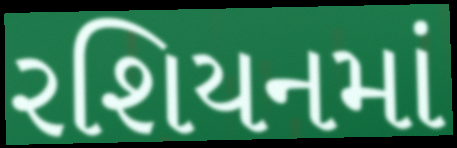
રશિયનમાં